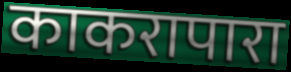
काकरापारा